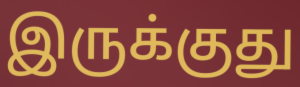
இருக்குது